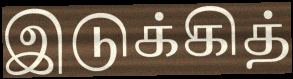
இடுக்கித்